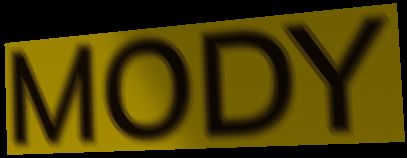
MODY